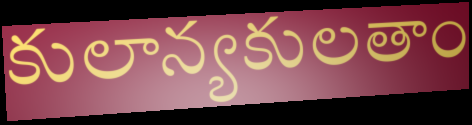
కులాన్యకులతాం